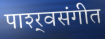
पाश्र्वसंगीत